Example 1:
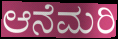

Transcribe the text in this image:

ಆನೆಮರಿ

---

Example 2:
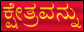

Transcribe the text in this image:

ಕ್ಷೇತ್ರವನ್ನು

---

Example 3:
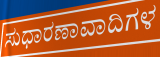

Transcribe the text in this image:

ಸುಧಾರಣಾವಾದಿಗಳ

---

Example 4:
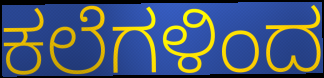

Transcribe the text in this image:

ಕಲೆಗಳಿಂದ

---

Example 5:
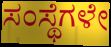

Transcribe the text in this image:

ಸಂಸ್ಥೆಗಳೇ